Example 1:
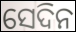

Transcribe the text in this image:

ସେଦିନ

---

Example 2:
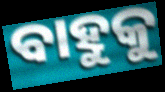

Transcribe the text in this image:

ବାହୁକୁ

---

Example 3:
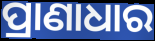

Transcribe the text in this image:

ପ୍ରାଣାଧାର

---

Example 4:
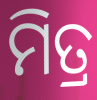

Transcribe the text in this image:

ମିତ୍ର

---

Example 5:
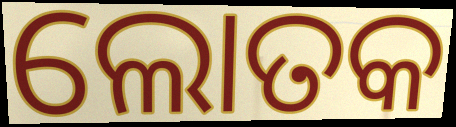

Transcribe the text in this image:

ଲୋତକ